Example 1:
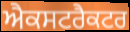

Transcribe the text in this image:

ਐਕਸਟਰੈਕਟਰ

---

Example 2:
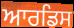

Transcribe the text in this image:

ਆਰਡਿਸ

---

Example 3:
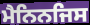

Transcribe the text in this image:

ਮੈਨਿਨਜਿਸ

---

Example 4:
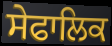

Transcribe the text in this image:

ਸੇਫਾਲਿਕ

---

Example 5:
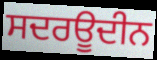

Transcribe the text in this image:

ਸਦਰਊਦੀਨ